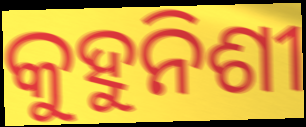
କୁହୁନିଶୀ